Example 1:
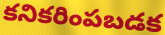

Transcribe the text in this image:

కనికరింపబడక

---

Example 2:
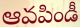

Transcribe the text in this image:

ఆవపిండీ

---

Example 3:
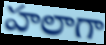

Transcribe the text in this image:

హలాగా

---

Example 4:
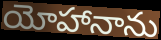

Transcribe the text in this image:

యోహానాను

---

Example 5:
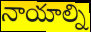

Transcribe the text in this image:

నాయాల్ని